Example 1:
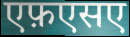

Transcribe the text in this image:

एफ़एसए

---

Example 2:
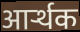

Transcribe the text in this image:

आर्र्थक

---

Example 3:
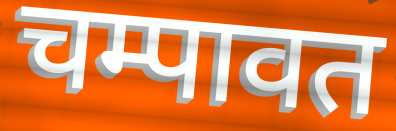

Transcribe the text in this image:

चम्पावत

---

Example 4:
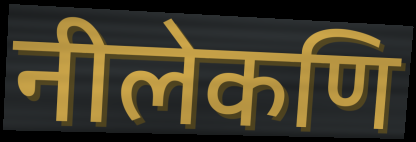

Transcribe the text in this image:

नीलेकणि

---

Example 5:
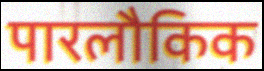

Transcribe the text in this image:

पारलौकिक